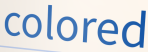
colored